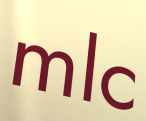
mlc